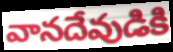
వానదేవుడికి